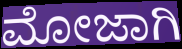
ಮೋಜಾಗಿ